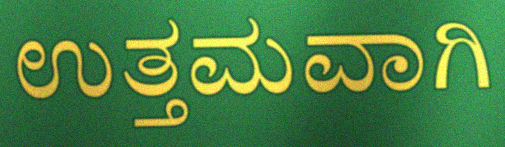
ಉತ್ತಮವಾಗಿ